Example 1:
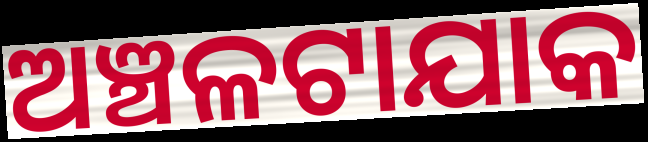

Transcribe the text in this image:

ଅଞ୍ଚଳଟାଯାକ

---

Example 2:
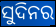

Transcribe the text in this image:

ସୁଦିନର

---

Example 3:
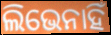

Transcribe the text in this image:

ଲିଭେନାହିଁ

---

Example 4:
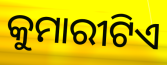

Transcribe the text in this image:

କୁମାରୀଟିଏ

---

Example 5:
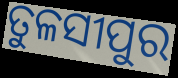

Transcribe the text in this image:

ତୁଳସୀପୁର